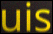
uis